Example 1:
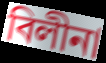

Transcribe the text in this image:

বিলীনা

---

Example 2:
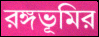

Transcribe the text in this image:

রঙ্গভূমির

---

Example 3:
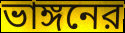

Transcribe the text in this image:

ভাঙ্গনের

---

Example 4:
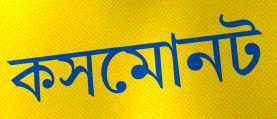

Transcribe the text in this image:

কসমোনট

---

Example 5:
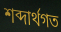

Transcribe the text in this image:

শব্দার্থগত